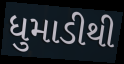
ધુમાડીથી